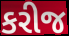
કરીજ